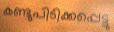
കണ്ടുപിടിക്കപ്പെട്ടു